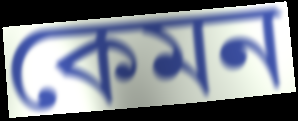
কেমন